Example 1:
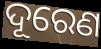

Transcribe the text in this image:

ଦୂରେଣ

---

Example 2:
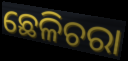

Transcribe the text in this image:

ଛେଳିଚରା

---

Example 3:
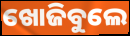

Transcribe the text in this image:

ଖୋଜିବୁଲେ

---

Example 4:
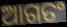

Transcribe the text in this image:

ଆଗତଂ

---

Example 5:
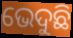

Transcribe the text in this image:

ଭେଦୁଛି